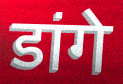
डांगे